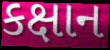
કક્ષાન